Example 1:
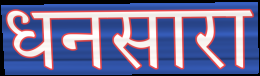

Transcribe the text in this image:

धनसारा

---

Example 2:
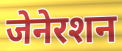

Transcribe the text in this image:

जेनेरशन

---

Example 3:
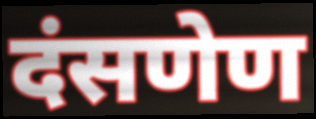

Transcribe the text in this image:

दंसणेण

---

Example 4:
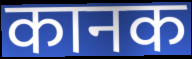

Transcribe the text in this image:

कानक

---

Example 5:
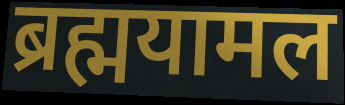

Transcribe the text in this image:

ब्रह्मयामल